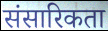
संसारिकता